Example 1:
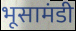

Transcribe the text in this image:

भूसामंडी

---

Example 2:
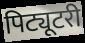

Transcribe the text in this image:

पिट्यूटरी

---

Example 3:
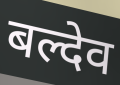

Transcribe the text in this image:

बल्देव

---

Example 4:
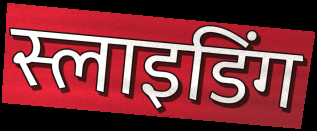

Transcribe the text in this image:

स्लाइडिंग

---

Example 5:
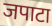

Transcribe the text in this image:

जपाटा